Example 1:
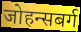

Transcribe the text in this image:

जोहन्सबर्ग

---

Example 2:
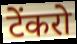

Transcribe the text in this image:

टेंकरो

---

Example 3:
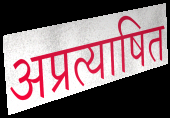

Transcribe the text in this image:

अप्रत्याषित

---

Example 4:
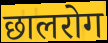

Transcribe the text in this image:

छालरोग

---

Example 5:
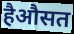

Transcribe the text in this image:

हैऔसत